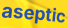
aseptic